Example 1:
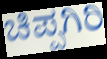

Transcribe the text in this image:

ಚಿಪ್ಪಗಿರಿ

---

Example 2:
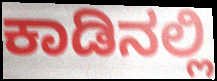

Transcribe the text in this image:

ಕಾಡಿನಲ್ಲಿ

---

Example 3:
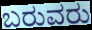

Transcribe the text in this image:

ಬರುವರು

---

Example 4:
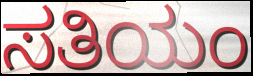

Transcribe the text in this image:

ಸತಿಯಂ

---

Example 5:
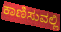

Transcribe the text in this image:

ಕಾಣಿಸುವಲ್ಲಿ